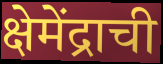
क्षेमेंद्राची